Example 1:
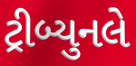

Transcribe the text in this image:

ટ્રીબ્યુનલે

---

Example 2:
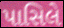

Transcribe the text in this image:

પાસિલે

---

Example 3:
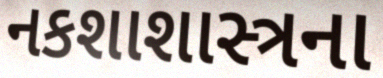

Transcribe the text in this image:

નકશાશાસ્ત્રના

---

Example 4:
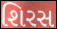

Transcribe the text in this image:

શિરસ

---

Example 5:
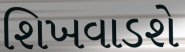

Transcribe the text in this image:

શિખવાડશે